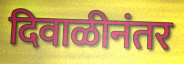
दिवाळीनंतर